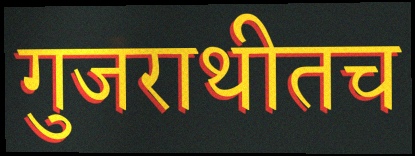
गुजराथीतच